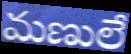
మణులే